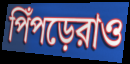
পিঁপড়েরাও